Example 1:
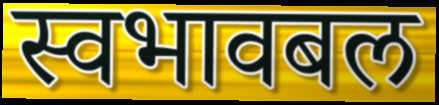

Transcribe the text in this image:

स्वभावबल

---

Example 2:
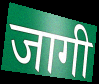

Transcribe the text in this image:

जागी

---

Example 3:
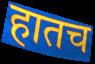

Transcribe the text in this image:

हातच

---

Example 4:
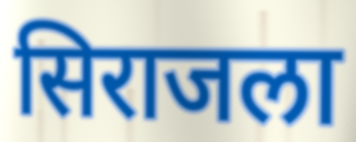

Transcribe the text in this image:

सिराजला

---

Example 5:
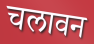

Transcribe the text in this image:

चलावन